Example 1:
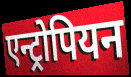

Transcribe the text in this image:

एन्ट्रोपियन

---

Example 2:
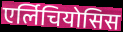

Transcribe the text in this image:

एर्लिचियोसिस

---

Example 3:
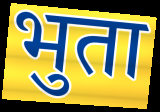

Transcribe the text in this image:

भुता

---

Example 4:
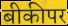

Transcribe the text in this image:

बीकीपर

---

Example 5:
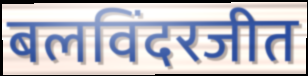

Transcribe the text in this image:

बलविंदरजीत